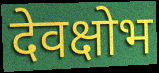
देवक्षोभ